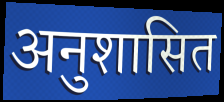
अनुशासित